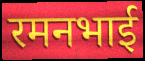
रमनभाई